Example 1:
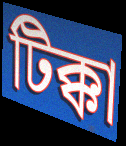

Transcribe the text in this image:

টিক্কা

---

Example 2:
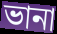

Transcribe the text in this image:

ভানা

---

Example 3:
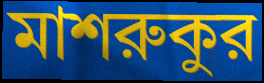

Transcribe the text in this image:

মাশরুকুর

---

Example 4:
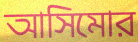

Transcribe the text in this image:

আসিমোর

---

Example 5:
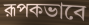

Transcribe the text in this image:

রূপকভাবে